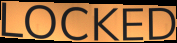
LOCKED